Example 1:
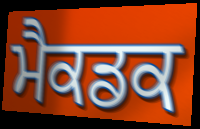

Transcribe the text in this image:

ਮੈਕਡਕ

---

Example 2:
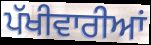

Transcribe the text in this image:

ਪੱਖੀਵਾਰੀਆਂ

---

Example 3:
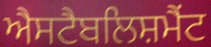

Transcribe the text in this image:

ਐਸਟੈਬਲਿਸ਼ਮੈਂਟ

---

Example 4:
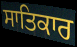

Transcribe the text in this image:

ਸਾਤਿਕਾਰ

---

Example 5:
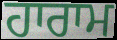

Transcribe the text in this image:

ਹਾਰਾਮ